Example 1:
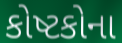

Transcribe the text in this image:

કોષ્ટકોના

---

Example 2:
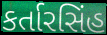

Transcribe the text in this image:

કર્તારસિંહ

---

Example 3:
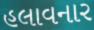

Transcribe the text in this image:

હલાવનાર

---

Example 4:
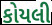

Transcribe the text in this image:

કોયલી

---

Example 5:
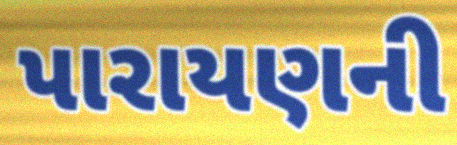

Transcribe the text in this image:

પારાયણની